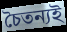
চৈতন্যই